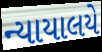
ન્યાયાલયે